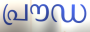
പ്രൗഡ